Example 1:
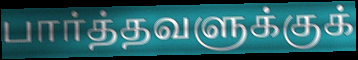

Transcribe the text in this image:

பார்த்தவளுக்குக்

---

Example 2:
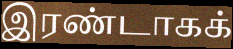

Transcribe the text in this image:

இரண்டாகக்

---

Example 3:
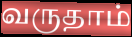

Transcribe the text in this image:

வருதாம்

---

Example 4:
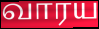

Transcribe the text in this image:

வாரய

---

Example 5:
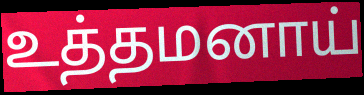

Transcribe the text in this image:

உத்தமனாய்